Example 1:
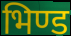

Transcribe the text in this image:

भिण्‍ड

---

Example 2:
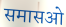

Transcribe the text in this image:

समासओ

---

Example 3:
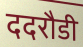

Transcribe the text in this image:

ददरौडी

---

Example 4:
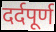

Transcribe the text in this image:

दर्दपूर्ण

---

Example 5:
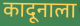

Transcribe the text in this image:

कादूनाला